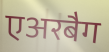
एअरबैग